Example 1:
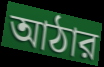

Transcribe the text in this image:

আঠার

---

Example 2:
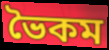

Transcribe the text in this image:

ভৈকম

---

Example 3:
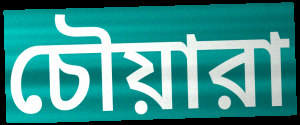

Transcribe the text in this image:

চৌয়ারা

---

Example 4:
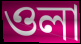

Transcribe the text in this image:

ওলা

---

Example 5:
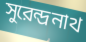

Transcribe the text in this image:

সুরেন্দ্রনাথ